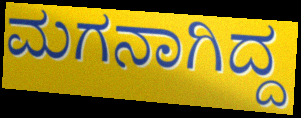
ಮಗನಾಗಿದ್ದ